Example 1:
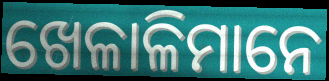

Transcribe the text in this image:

ଖେଳାଳିମାନେ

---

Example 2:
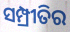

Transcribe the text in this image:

ସମ୍ପ୍ରୀତିର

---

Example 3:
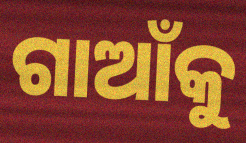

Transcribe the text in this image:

ଗାଆଁକୁ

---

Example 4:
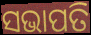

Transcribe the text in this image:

ସଭାପତି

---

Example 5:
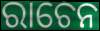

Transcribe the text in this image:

ରାଚେନ